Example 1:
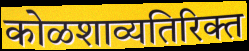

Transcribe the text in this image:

कोळशाव्यतिरिक्त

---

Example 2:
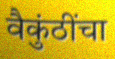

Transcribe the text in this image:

वैकुंठींचा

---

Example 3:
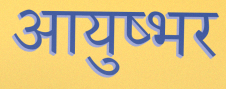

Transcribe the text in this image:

आयुष्भर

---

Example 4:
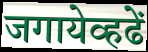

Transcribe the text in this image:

जगायेव्हढें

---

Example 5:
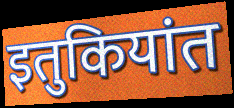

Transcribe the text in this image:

इतुकियांत